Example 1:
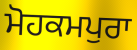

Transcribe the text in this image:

ਮੋਹਕਮਪੁਰਾ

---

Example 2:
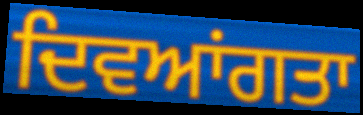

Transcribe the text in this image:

ਦਿਵਆਂਗਤਾ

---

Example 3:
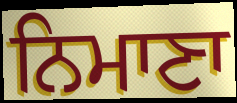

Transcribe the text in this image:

ਨਿਮਾਣਾ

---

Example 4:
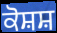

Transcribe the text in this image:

ਕੋਸ਼ਸ਼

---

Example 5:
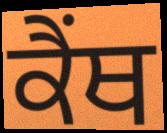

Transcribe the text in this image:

ਕੈਂਥ